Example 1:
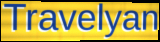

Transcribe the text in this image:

Travelyan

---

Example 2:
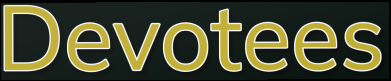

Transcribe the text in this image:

Devotees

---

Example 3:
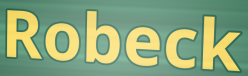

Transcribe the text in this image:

Robeck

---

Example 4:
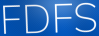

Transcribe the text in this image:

FDFS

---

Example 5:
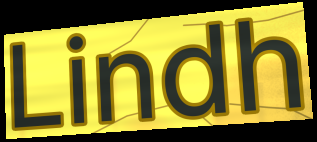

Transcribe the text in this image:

Lindh